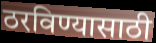
ठरविण्यासाठी